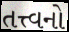
તત્ત્વનો